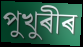
পুখুৰীৰ